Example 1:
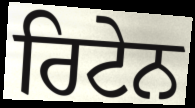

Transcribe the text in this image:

ਰਿਟੇਨ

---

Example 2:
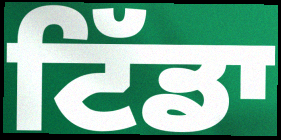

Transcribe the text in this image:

ਟਿੱਡਾ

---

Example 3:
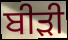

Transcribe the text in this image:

ਬੀਡ਼ੀ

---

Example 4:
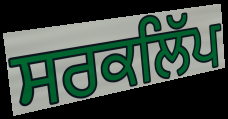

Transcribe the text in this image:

ਸਰਕਲਿੱਪ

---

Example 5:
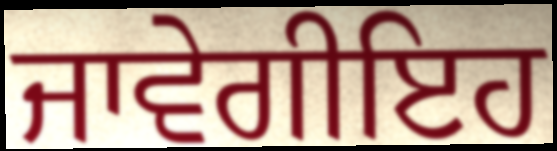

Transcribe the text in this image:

ਜਾਵੇਗੀਇਹ